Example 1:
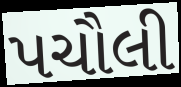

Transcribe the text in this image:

પચૌલી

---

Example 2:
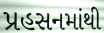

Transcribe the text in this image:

પ્રહસનમાંથી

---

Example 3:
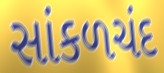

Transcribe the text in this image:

સાંકળચંદ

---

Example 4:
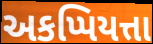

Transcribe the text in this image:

અકપ્પિયત્તા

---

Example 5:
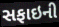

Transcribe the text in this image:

સફાઇની